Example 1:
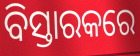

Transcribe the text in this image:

ବିସ୍ତାରକରେ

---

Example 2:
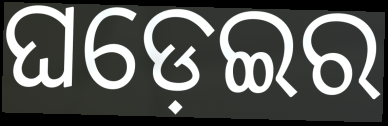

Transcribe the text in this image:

ଘଡ଼େଇର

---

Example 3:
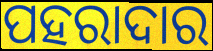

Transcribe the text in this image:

ପହରାଦାର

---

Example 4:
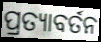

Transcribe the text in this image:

ପ୍ରତ୍ୟାବର୍ତନ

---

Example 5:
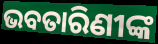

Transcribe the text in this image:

ଭବତାରିଣୀଙ୍କ